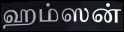
ஹம்ஸன்